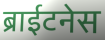
ब्राईटनेस